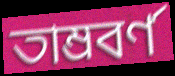
তাম্রবর্ণ